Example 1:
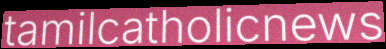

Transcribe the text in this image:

tamilcatholicnews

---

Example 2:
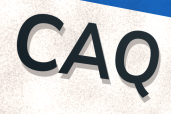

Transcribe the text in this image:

CAQ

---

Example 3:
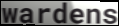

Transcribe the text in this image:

wardens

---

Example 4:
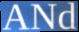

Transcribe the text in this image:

ANd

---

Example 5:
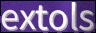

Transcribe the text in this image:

extols